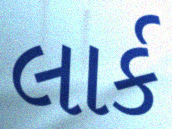
લાર્ક